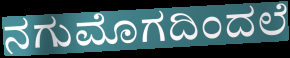
ನಗುಮೊಗದಿಂದಲೆ